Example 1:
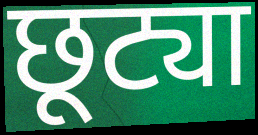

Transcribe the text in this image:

छूट्या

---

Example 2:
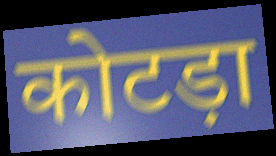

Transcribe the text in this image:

कोटड़ा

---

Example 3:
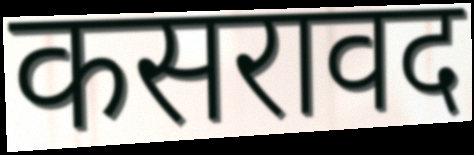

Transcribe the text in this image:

कसरावद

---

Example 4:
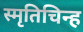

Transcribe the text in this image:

स्मृतिचिन्ह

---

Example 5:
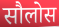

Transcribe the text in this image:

सौलोस